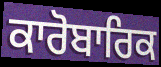
ਕਾਰੋਬਾਰਿਕ